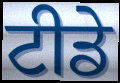
ਟੀਡੇ